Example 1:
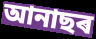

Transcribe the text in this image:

আনাছৰ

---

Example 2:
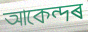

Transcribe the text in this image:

আকেন্দৰ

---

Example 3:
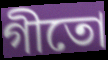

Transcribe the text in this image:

গীতো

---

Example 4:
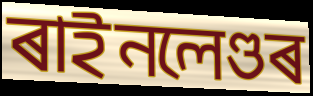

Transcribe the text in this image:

ৰাইনলেণ্ডৰ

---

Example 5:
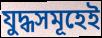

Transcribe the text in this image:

যুদ্ধসমূহেই